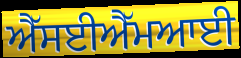
ਐੱਸਈਐੱਮਆਈ